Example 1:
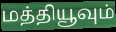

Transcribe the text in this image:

மத்தியூவும்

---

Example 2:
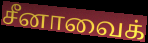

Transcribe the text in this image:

சீனாவைக்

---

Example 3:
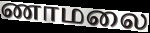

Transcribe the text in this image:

ணாமலை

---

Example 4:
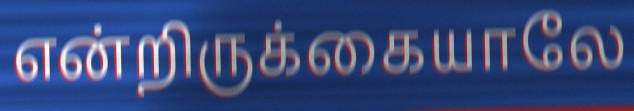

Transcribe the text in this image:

என்றிருக்கையாலே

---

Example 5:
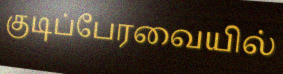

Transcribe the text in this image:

குடிப்பேரவையில்